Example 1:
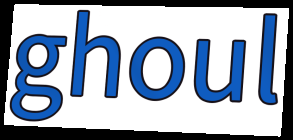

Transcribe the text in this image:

ghoul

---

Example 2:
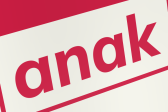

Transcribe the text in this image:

anak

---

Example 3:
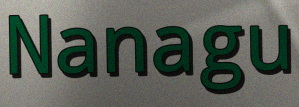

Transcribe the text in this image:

Nanagu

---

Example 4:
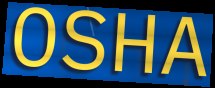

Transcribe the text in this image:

OSHA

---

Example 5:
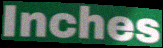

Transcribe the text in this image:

Inches